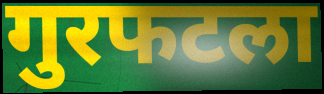
गुरफटला